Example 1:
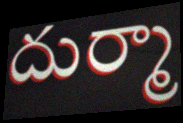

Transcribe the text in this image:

దుర్మా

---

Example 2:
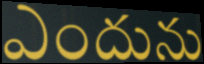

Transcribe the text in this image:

ఎందును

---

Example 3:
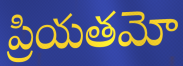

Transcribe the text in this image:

ప్రియతమో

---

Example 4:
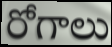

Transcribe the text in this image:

రోగాలు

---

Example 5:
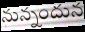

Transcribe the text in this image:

నున్నందున